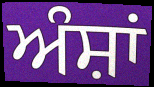
ਅੰਸ਼ਾਂ